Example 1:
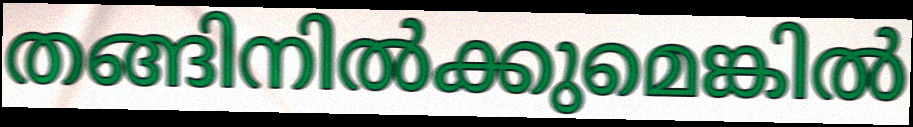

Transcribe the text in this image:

തങ്ങിനിൽക്കുമെങ്കിൽ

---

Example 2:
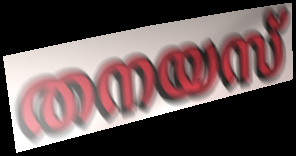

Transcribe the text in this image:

തനയസ്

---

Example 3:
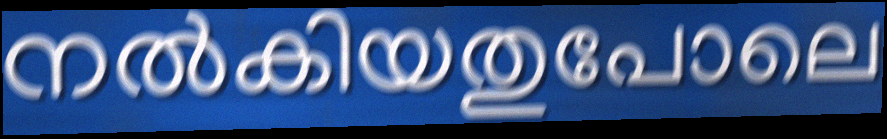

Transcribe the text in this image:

നൽകിയതുപോലെ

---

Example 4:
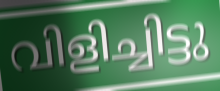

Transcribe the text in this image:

വിളിച്ചിട്ടു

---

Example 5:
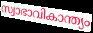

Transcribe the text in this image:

സ്വാഭാവികാന്ത്യം